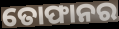
ତୋଫାନର